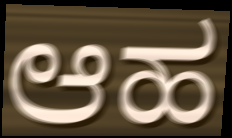
ಆಹ